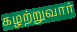
கழற்றுவார்